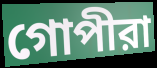
গোপীরা